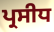
ਪ੍ਰਸੀਧ